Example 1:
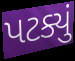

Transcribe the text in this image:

પટક્યું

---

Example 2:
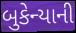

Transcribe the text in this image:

બુકેન્યાની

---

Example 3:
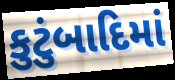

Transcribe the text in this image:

કુટુંબાદિમાં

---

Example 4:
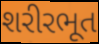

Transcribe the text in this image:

શરીરભૂત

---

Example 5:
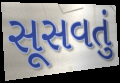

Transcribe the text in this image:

સૂસવતું